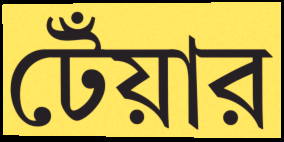
টেঁয়ার